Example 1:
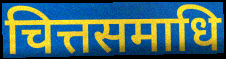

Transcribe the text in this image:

चित्तसमाधि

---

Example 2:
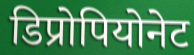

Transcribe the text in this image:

डिप्रोपियोनेट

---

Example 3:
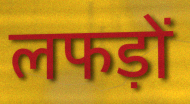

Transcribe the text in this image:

लफड़ों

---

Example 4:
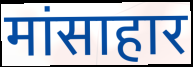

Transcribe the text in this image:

मांसाहार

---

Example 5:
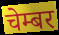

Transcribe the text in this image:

चेम्बर